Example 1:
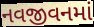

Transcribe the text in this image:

નવજીવનમાં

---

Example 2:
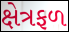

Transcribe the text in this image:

ક્ષેત્રફળ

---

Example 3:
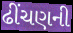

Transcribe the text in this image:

ઢીંચણની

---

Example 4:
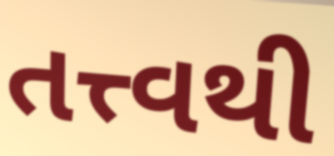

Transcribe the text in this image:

તત્ત્વથી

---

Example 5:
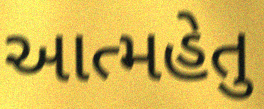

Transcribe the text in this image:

આત્મહેતુ